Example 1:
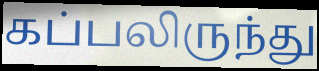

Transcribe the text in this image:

கப்பலிருந்து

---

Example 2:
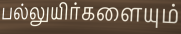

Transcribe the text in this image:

பல்லுயிர்களையும்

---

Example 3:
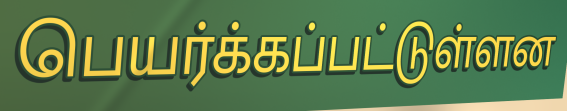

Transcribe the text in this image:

பெயர்க்கப்பட்டுள்ளன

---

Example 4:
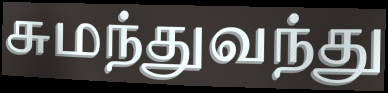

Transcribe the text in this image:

சுமந்துவந்து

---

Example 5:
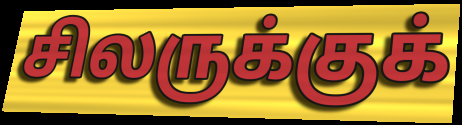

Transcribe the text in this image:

சிலருக்குக்